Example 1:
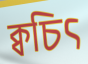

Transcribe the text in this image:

ক্বচিৎ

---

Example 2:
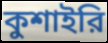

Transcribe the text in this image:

কুশাইরি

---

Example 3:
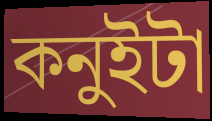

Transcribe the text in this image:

কনুইটা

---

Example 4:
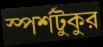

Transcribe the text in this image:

স্পর্শটুকুর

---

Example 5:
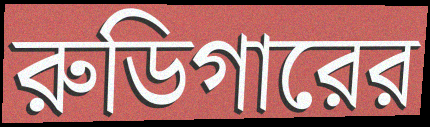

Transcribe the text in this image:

রুডিগারের